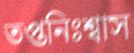
তপ্তনিঃশ্বাস